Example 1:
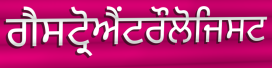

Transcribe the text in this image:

ਗੈਸਟ੍ਰੋਐਂਟਰੌਲੋਜਿਸਟ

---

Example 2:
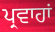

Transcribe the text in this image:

ਪ੍ਰਵਾਹਾਂ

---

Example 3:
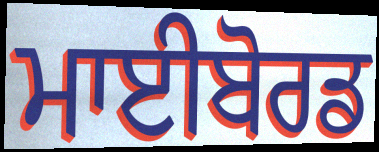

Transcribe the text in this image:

ਮਾਈਬੋਰਡ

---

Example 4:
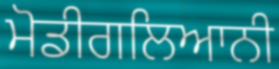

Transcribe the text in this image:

ਮੋਡੀਗਲਿਆਨੀ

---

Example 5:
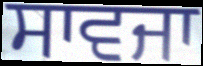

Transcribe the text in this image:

ਸਾਵਜਾ